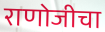
राणोजीचा